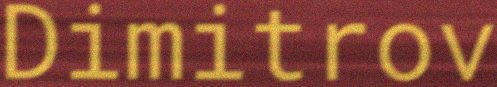
Dimitrov